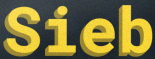
Sieb